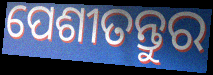
ପେଶୀତନ୍ତୁର